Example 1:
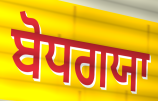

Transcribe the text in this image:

ਬੋਧਗਯਾ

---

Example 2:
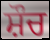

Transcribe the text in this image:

ਸ਼ੌਚ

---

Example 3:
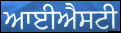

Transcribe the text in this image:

ਆਈਐਸਟੀ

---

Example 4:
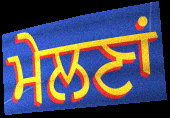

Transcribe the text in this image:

ਮੇਲਣਾਂ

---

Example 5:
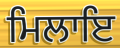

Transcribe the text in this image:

ਮਿਲਾਇ